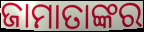
ଜାମାତାଙ୍କର